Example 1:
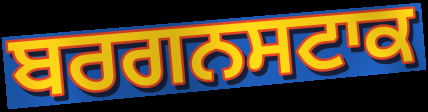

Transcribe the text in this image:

ਬਰਗਨਸਟਾਕ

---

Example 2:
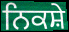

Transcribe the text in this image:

ਨਿਕਸ਼ੇ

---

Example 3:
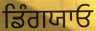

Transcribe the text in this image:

ਡਿੰਗਯਾਓ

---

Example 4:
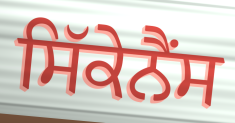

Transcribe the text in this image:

ਸਿੱਕੇਨੈਂਸ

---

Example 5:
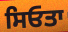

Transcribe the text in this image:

ਸਿਓਤਾ